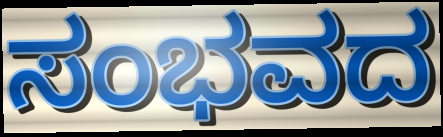
ಸಂಭವದ